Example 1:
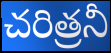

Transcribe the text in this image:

చరిత్రనీ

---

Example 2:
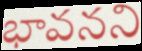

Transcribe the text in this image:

భావనని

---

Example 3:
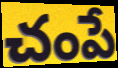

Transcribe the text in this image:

చంపే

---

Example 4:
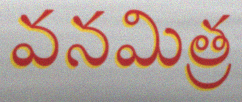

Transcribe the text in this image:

వనమిత్ర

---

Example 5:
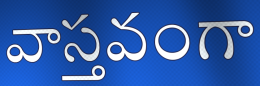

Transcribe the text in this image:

వాస్తవంగా